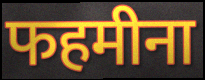
फहमीना